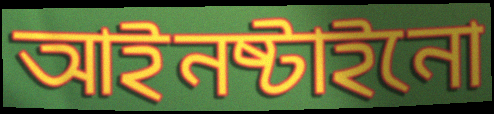
আইনষ্টাইনো